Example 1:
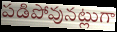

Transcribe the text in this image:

పడిపోవునట్లుగా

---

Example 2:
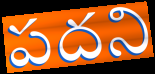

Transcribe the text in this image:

పదని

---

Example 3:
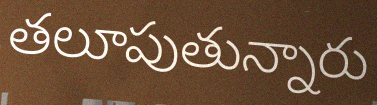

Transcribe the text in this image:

తలూపుతున్నారు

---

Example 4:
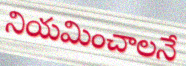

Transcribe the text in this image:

నియమించాలనే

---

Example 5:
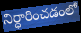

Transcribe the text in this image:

నిర్ధారించడంలో